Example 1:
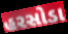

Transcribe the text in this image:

હરસોડા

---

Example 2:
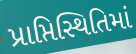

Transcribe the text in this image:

પ્રાપ્તિસ્થિતિમાં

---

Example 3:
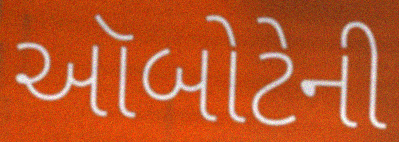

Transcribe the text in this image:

ઑબોટેની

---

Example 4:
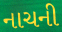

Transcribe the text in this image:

નાચની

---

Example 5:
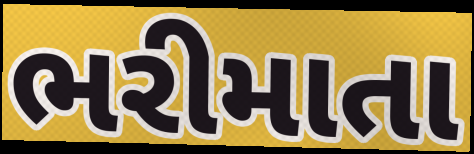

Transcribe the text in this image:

ભરીમાતા